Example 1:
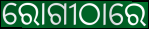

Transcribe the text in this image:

ରୋଗୀଠାରେ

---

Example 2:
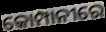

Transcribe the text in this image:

କୋମ୍ପାନୀରେ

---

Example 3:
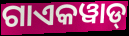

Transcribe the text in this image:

ଗାଏକୱାଡ୍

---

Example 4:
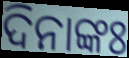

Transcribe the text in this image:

ଦିନାଙ୍କଃ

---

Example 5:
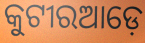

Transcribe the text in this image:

କୁଟୀରଆଡ଼େ